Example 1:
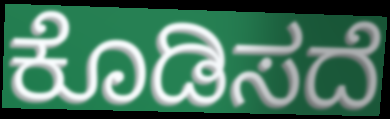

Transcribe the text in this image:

ಕೊಡಿಸದೆ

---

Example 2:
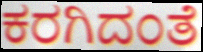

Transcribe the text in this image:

ಕರಗಿದಂತೆ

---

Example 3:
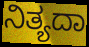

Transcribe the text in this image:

ನಿತ್ಯದಾ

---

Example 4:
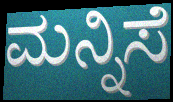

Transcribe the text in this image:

ಮನ್ನಿಸೆ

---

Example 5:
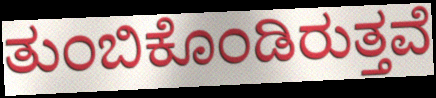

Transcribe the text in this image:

ತುಂಬಿಕೊಂಡಿರುತ್ತವೆ